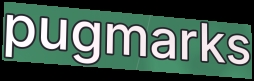
pugmarks